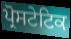
ਪ੍ਰੋਸਟੇਟਿਕ